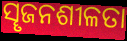
ସୄଜନଶୀଳତା